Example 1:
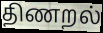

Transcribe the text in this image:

திணறல்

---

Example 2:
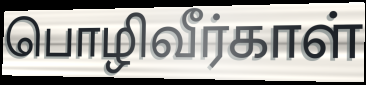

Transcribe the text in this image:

பொழிவீர்காள்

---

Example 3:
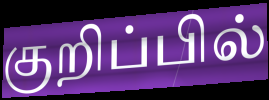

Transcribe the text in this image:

குறிப்பில்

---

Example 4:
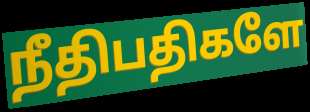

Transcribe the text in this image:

நீதிபதிகளே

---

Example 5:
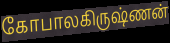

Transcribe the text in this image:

கோபாலகிருஷ்ணன்